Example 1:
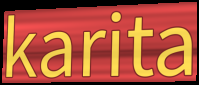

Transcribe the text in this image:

karita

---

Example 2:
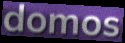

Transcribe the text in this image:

domos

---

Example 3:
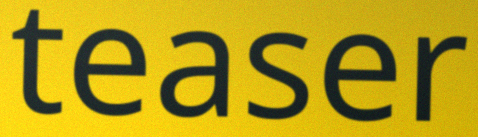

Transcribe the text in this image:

teaser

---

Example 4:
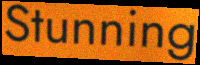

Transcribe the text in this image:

Stunning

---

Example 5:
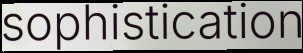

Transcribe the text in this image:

sophistication